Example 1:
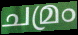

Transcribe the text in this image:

ചമ്രം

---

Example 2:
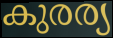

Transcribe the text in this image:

കുരര്യ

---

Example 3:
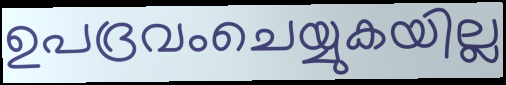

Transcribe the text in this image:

ഉപദ്രവംചെയ്യുകയില്ല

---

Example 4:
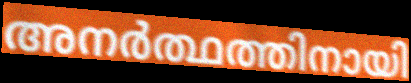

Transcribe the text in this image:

അനർത്ഥത്തിനായി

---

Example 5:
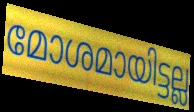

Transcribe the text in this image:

മോശമായിട്ടല്ല